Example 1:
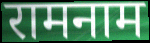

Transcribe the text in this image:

रामनाम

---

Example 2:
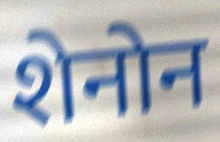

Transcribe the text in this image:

शेनोन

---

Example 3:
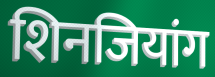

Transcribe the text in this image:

शिनजियांग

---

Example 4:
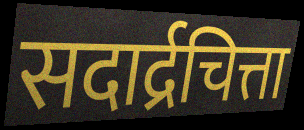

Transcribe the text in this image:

सदार्द्रचित्ता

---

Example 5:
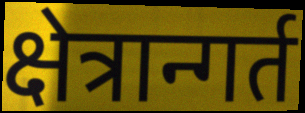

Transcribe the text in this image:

क्षेत्रान्गर्त